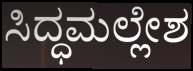
ಸಿದ್ಧಮಲ್ಲೇಶ